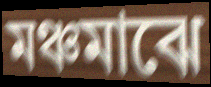
মঞ্চমাঝে